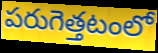
పరుగెత్తటంలో